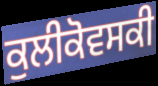
ਕੁਲੀਕੋਵਸਕੀ